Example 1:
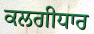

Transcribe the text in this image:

ਕਲਗੀਧਾਰ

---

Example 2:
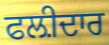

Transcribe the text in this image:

ਫਲ਼ੀਦਾਰ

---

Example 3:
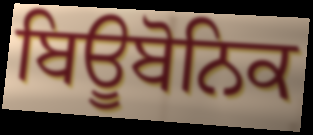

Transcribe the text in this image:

ਬਿਊਬੋਨਿਕ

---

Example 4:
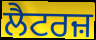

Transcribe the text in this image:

ਲੈਟਰਜ਼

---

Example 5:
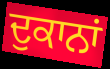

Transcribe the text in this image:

ਦੁਕਾਨਾਂ